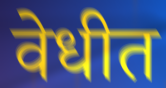
वेधीत